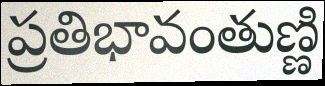
ప్రతిభావంతుణ్ణి